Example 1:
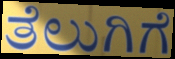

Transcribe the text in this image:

ತೆಲುಗಿಗೆ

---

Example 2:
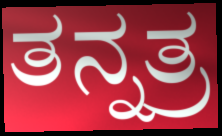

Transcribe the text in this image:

ತನ್ನತ್ರ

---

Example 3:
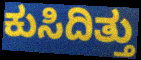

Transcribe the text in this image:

ಕುಸಿದಿತ್ತು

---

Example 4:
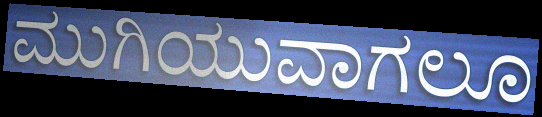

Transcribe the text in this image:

ಮುಗಿಯುವಾಗಲೂ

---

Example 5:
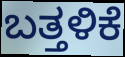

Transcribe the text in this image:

ಬತ್ತಳಿಕೆ